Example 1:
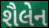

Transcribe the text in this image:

શૈલેન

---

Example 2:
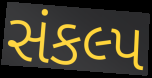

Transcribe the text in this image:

સંકલ્પ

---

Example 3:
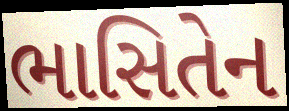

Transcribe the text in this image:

ભાસિતેન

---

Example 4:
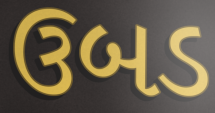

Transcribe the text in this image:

ઉબડ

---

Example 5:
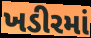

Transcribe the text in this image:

ખડીરમાં